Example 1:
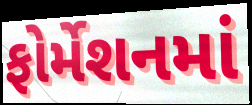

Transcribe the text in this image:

ફોર્મેશનમાં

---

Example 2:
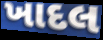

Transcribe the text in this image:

ખાદલ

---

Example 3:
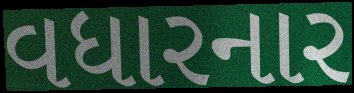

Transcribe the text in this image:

વધારનાર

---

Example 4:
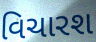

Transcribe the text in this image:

વિચારશ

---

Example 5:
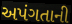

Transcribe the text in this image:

અપંગતાની